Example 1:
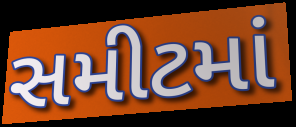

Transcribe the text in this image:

સમીટમાં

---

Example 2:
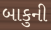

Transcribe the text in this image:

બાકુની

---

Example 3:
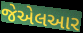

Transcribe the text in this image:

જેએલઆર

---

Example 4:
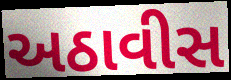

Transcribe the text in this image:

અઠાવીસ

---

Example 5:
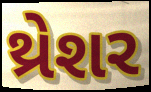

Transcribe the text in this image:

થ્રેશર